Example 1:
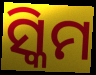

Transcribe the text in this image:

ସ୍କିମ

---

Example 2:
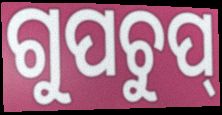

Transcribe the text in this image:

ଗୁପଚୁପ୍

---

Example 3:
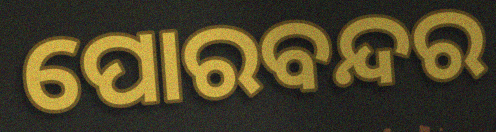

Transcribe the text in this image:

ପୋରବନ୍ଦର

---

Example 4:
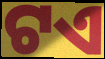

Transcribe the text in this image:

ଟଏ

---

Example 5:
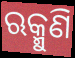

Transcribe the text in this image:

ଋକ୍ମୁଣି